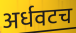
अर्धवटच